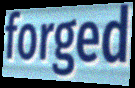
forged